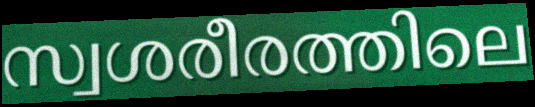
സ്വശരീരത്തിലെ